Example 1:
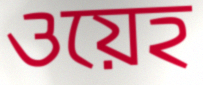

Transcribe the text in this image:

ওয়েহ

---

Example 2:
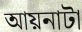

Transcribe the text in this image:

আয়নাটা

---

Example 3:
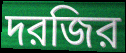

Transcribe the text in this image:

দরজির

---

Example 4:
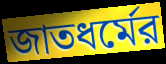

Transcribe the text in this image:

জাতধর্মের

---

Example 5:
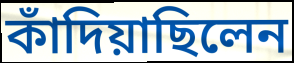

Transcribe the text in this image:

কাঁদিয়াছিলেন